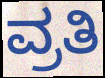
ವ್ರತಿ